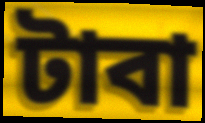
টাবা